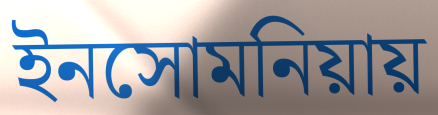
ইনসোমনিয়ায়